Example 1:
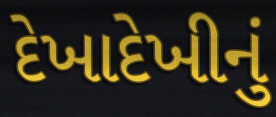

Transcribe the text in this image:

દેખાદેખીનું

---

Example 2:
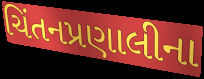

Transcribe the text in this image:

ચિંતનપ્રણાલીના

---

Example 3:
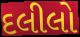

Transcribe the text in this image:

દલીલો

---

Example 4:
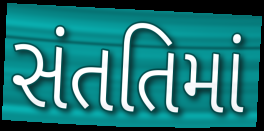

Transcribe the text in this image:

સંતતિમાં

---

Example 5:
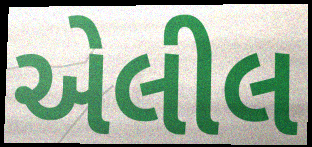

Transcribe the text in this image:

એલીલ